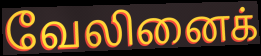
வேலினைக்